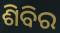
ଶିବିର